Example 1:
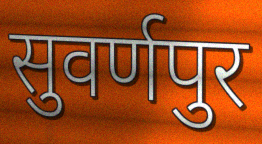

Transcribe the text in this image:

सुवर्णपुर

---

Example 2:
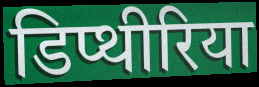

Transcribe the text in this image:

डिप्थीरिया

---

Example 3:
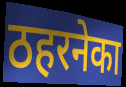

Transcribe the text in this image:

ठहरनेका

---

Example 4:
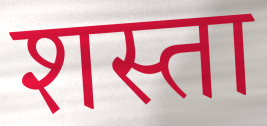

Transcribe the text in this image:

शस्ता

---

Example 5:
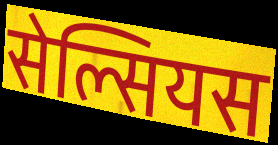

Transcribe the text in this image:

सेल्सियस